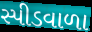
સ્પીડવાળા